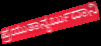
ಪ್ರಯುತಾನ್ಯರ್ಬುದಾನಿ